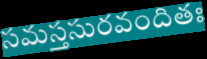
సమస్తసురవందితః